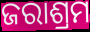
ଜରାଶ୍ରମ